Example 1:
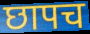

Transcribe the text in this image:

छापच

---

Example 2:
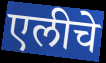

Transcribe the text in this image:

एलीचे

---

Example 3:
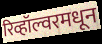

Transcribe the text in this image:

रिव्हॉल्वरमधून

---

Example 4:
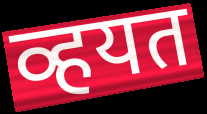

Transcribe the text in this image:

व्हयत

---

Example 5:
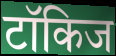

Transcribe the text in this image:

टॉकिज